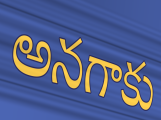
అనగాకు